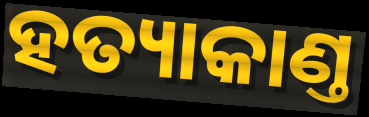
ହତ୍ୟାକାଣ୍ତ